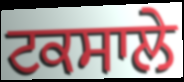
ਟਕਸਾਲੇ